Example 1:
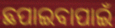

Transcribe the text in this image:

ଛପାଇବାପାଇଁ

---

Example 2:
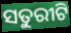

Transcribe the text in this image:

ସତୁରୀଟି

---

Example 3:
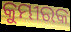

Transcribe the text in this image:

କୁମ୍ଭୀରକ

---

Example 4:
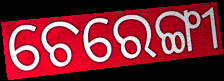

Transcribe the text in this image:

ଚେରେଙ୍ଗୀ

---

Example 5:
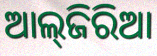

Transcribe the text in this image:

ଆଲ୍‌ଜିରିଆ